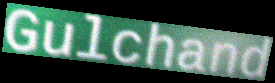
Gulchand